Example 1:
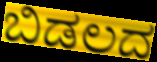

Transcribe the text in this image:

ಬಿಡಲದ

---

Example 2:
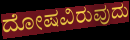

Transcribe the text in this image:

ದೋಷವಿರುವುದು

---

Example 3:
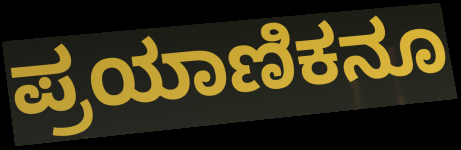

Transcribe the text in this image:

ಪ್ರಯಾಣಿಕನೂ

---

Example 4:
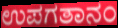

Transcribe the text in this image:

ಉಪಗತಾನಂ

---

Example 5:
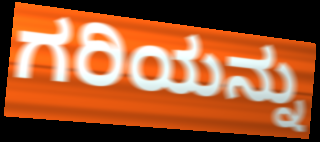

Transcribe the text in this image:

ಗರಿಯನ್ನು